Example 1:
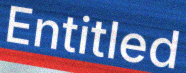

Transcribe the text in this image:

Entitled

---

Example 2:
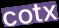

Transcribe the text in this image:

cotx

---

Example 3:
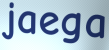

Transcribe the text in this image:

jaega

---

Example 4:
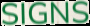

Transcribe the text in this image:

SIGNS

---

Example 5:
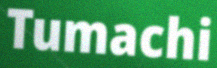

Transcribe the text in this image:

Tumachi